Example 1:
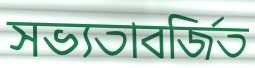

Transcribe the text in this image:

সভ্যতাবর্জিত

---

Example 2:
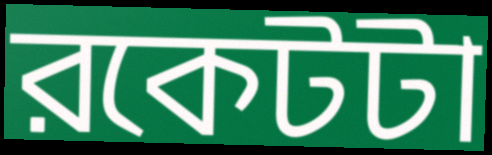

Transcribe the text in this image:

রকেটটা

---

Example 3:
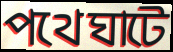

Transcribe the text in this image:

পথেঘাটে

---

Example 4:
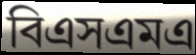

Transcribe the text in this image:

বিএসএমএ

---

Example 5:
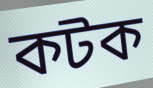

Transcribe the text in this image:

কটক